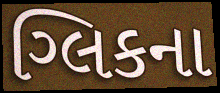
ગ્લિકના